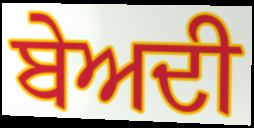
ਬੇਅਦੀ